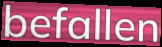
befallen